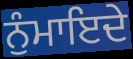
ਨੁੰਮਾਇਦੇ